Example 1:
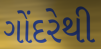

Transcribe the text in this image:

ગોંદરેથી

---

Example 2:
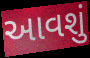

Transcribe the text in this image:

આવશું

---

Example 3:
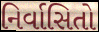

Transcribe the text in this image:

નિર્વાસિતો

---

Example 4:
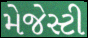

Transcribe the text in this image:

મેજેસ્ટી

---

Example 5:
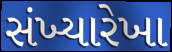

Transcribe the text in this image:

સંખ્યારેખા